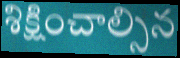
శిక్షించాల్సిన